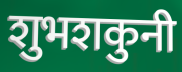
शुभशकुनी